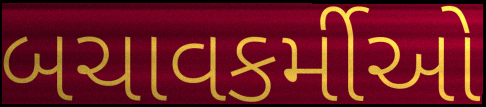
બચાવકર્મીઓ